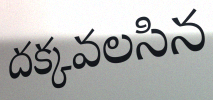
దక్కవలసిన